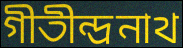
গীতীন্দ্রনাথ